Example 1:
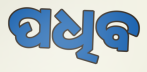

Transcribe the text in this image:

ପଧିବ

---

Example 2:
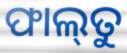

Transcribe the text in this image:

ଫାଲ୍‌ତୁ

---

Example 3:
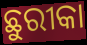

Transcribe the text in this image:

ଛୁରୀକା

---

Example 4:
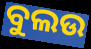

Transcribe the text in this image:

ବୁଲଉ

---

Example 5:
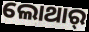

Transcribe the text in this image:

ଲୋଥାର୍